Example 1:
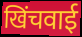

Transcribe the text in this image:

खिंचवाई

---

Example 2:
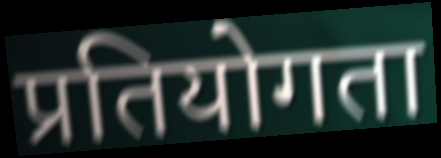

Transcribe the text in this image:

प्रतियोगता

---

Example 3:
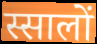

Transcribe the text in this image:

स्सालों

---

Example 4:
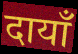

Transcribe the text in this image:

दायाँ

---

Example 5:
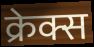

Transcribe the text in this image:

क्रेक्स